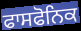
ਫਾਸਫੋਨਿਕ